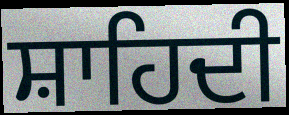
ਸ਼ਾਹਿਦੀ